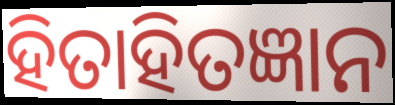
ହିତାହିତଜ୍ଞାନ